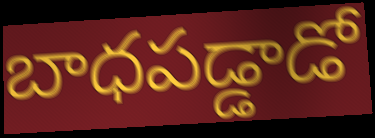
బాధపడ్డాడో